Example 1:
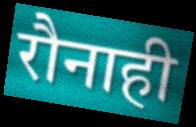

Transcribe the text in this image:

रौनाही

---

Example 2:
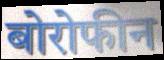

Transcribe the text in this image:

बोरोफीन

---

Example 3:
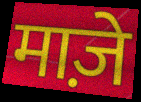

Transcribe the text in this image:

माज़े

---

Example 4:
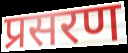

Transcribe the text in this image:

प्रसरण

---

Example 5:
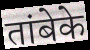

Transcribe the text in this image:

तांबेके